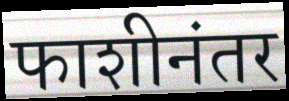
फाशीनंतर